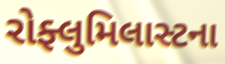
રોફ્લુમિલાસ્ટના